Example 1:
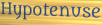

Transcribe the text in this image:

Hypotenuse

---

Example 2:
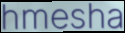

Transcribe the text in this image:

hmesha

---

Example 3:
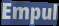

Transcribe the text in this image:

Empul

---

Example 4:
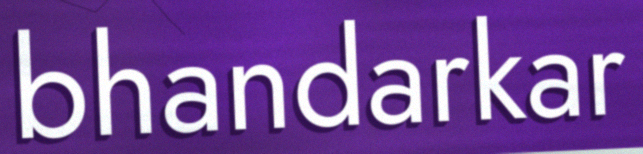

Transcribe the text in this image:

bhandarkar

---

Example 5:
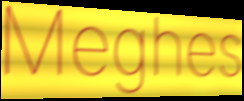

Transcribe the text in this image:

Meghes